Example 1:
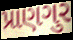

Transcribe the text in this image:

પ્રાણગુર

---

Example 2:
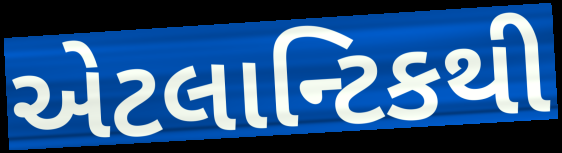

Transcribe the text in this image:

એટલાન્ટિકથી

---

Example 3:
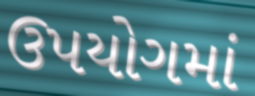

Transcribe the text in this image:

ઉપયોગમાં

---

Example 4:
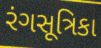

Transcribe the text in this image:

રંગસૂત્રિકા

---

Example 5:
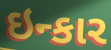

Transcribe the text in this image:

ઇન્કાર